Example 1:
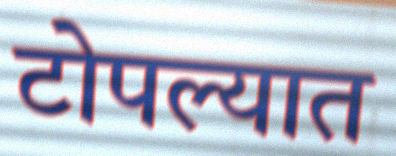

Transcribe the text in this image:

टोपल्यात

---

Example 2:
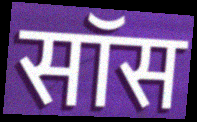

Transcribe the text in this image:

सॉस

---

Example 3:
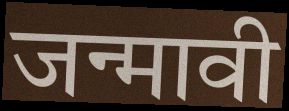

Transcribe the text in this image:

जन्मावी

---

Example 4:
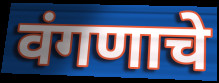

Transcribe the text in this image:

वंगणाचे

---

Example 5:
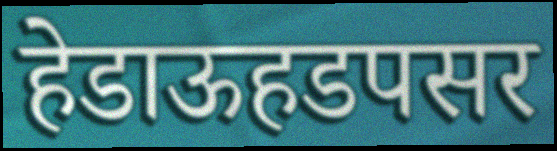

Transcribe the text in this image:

हेडाऊहडपसर